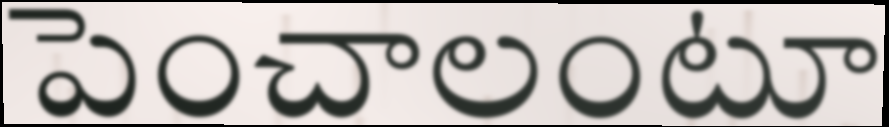
పెంచాలంటూ